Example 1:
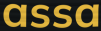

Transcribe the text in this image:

assa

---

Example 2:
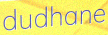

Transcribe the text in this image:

dudhane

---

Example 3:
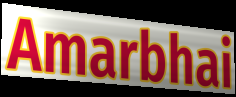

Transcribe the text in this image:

Amarbhai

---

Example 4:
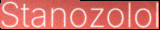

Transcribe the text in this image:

Stanozolol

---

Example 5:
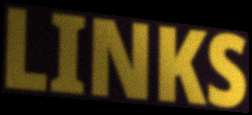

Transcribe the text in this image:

LINKS